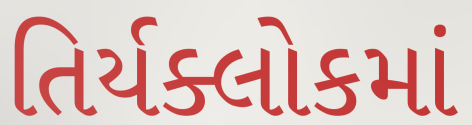
તિર્યક્લોકમાં